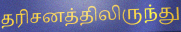
தரிசனத்திலிருந்து